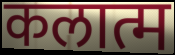
कलात्म